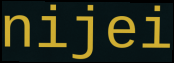
nijei